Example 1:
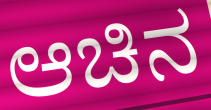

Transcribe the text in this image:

ಆಚಿನ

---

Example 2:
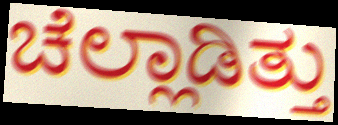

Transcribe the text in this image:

ಚೆಲ್ಲಾಡಿತ್ತು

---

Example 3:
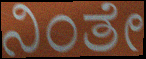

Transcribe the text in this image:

ನಿಂತೇ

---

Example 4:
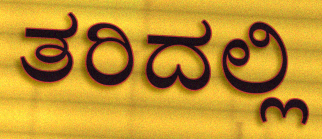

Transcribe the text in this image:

ತರಿದಲ್ಲಿ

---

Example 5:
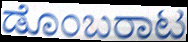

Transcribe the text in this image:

ಡೊಂಬರಾಟ